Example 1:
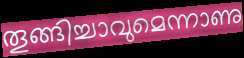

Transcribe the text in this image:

തൂങ്ങിച്ചാവുമെന്നാണു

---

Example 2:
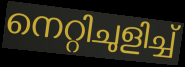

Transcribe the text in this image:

നെറ്റിചുളിച്ച്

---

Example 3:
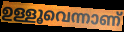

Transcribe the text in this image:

ഉള്ളൂവെന്നാണ്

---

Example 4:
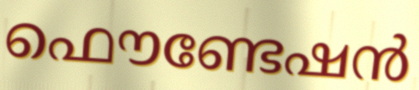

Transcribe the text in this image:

ഫൌണ്ടേഷൻ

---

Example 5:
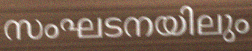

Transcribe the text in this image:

സംഘടനയിലും